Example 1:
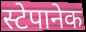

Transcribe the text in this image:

स्टेपानेक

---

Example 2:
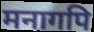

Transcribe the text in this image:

मनागपि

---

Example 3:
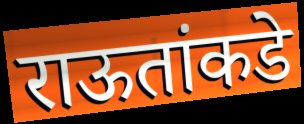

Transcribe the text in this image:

राऊतांकडे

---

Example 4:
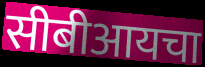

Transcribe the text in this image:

सीबीआयचा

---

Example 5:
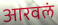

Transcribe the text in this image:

आरवलं